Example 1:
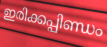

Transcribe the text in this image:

ഇരിക്കപ്പിണ്ഡം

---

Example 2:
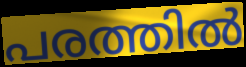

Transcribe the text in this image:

പരത്തിൽ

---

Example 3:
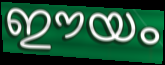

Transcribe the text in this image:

ഈയം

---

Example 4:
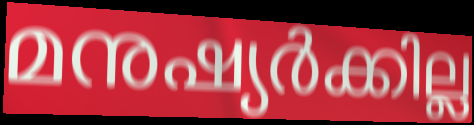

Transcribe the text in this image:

മനുഷ്യർക്കില്ല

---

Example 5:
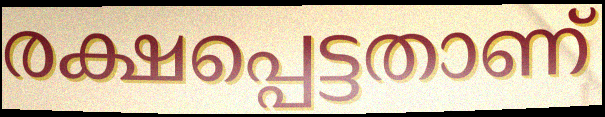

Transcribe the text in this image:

രക്ഷപ്പെട്ടതാണ്